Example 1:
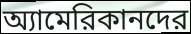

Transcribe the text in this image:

অ্যামেরিকানদের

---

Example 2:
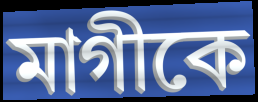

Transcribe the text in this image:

মাগীকে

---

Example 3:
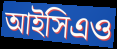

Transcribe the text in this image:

আইসিএও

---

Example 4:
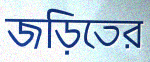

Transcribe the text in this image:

জড়িতের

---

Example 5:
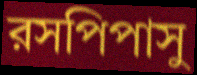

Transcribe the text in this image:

রসপিপাসু